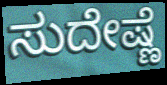
ಸುದೇಷ್ಣೆ